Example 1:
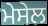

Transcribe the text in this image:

ਮੇਸੇਲ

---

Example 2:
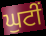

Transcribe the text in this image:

ਘੁਟੀਂ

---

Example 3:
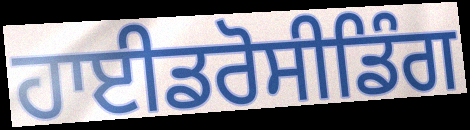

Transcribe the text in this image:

ਹਾਈਡਰੋਸੀਡਿੰਗ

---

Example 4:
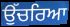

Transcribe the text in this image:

ਉੱਚਰਿਆ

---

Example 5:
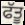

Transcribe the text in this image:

ਫੱਤੂ